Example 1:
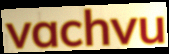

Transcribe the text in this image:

vachvu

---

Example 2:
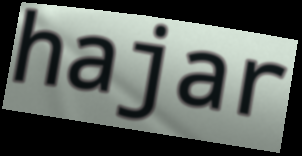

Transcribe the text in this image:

hajar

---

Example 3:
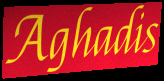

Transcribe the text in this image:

Aghadis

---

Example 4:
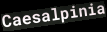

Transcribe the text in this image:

Caesalpinia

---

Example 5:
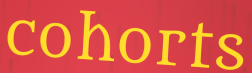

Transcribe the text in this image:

cohorts